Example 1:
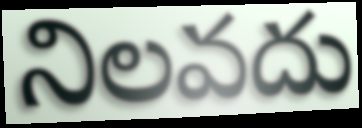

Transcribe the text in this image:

నిలవదు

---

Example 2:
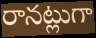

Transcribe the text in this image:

రానట్లుగా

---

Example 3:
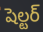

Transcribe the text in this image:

షెల్టర్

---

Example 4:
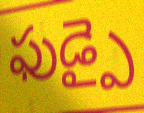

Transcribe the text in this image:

ఫుడ్పై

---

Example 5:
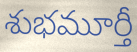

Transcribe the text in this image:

శుభమూర్తీ